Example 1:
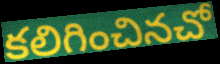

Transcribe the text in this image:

కలిగించినచో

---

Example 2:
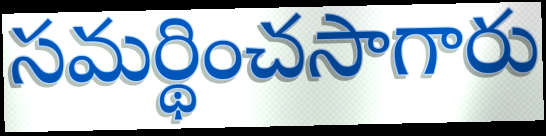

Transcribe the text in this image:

సమర్థించసాగారు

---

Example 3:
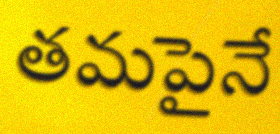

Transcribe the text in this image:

తమపైనే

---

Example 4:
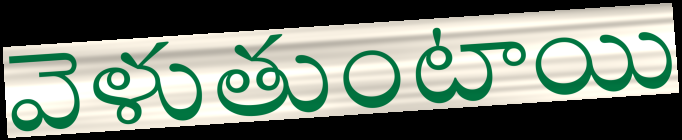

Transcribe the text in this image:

వెళుతుంటాయి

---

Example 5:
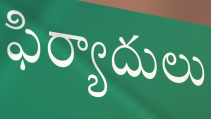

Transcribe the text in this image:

ఫిర్యాదులు